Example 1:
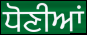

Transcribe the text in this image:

ਧੋਣੀਆਂ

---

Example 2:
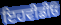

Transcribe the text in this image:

ਇਹਵੀਡੀਓ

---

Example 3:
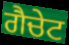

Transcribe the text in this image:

ਗੈਚੇਟ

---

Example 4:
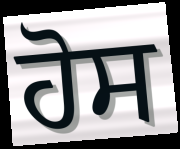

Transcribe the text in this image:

ਹੋਸ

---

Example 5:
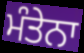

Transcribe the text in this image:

ਮੰਤੇਨਾ